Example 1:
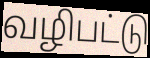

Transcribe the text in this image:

வழிபட்டு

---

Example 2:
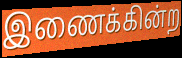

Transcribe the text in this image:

இணைக்கின்ற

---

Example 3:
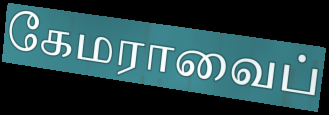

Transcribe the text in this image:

கேமராவைப்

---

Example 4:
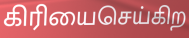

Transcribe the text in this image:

கிரியைசெய்கிற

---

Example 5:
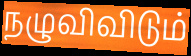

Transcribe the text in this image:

நழுவிவிடும்